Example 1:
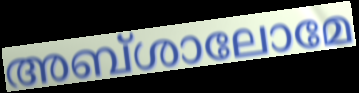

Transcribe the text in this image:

അബ്ശാലോമേ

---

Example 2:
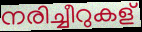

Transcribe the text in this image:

നരിച്ചീറുകള്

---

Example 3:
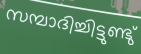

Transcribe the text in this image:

സമ്പാദിച്ചിട്ടുണ്ടു്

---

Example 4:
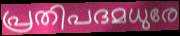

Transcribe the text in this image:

പ്രതിപദമധുരേ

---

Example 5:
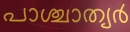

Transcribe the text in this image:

പാശ്ചാത്യർ